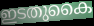
ഇടതുകൈ